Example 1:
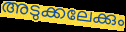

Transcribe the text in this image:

അടുക്കലേക്കും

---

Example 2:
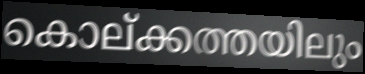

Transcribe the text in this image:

കൊല്ക്കത്തയിലും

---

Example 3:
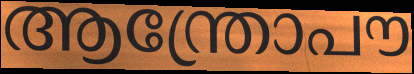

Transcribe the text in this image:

ആന്ത്രോപൗ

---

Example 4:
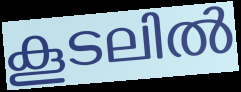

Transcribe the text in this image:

കൂടലിൽ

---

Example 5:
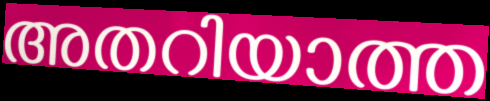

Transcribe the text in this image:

അതറിയാത്ത